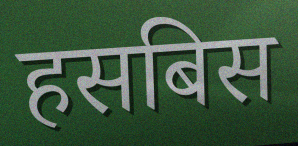
हसबिस